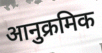
आनुक्रमिक